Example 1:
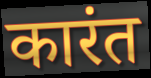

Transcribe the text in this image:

कारंत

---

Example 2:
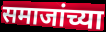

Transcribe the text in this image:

समाजांच्या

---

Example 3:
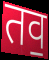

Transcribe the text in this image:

तव॒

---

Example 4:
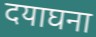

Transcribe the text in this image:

दयाघना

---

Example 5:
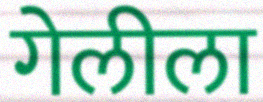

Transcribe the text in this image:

गेलीला